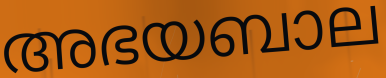
അഭയബാല